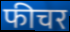
फीचर